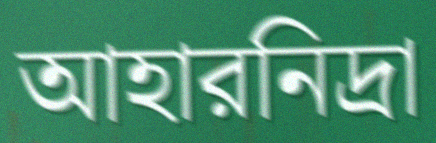
আহারনিদ্রা